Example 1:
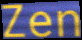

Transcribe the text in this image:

Zen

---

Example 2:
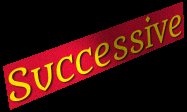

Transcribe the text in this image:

Successive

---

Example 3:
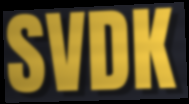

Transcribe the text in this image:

SVDK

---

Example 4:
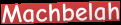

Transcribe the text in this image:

Machbelah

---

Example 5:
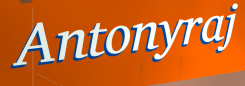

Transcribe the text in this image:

Antonyraj